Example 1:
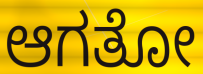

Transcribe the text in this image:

ಆಗತೋ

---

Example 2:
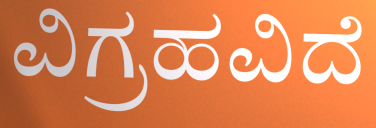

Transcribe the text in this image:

ವಿಗ್ರಹವಿದೆ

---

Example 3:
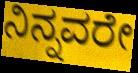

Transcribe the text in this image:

ನಿನ್ನವರೇ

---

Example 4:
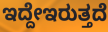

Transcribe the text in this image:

ಇದ್ದೇಇರುತ್ತದೆ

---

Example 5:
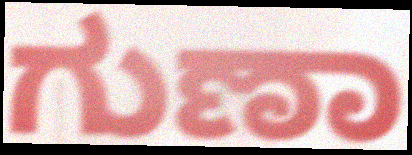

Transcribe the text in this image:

ಗುಣಾ